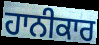
ਹਾਨੀਕਾਰ